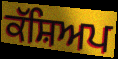
ਕੱਸ਼ਿਅਪ